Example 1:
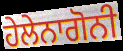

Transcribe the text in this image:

ਹੇਲੇਨਾਗੋਨੀ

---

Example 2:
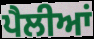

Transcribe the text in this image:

ਪੈਲੀਆਂ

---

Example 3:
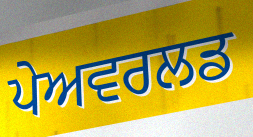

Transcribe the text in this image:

ਪੇਅਵਰਲਡ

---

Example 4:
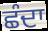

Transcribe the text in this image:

ਛੰਦਾ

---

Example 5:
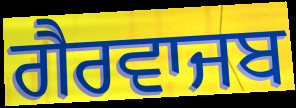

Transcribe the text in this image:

ਗੈਰਵਾਜਬ